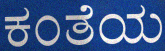
ಕಂತೆಯ